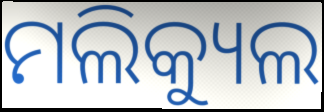
ମଲିକ୍ୟୁଲ